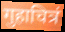
गुहाचित्रं